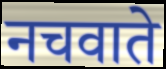
नचवाते